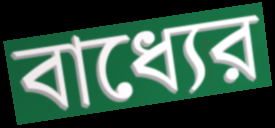
বাধ্যের